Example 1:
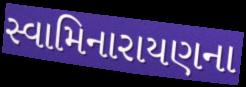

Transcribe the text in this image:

સ્વામિનારાયણના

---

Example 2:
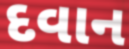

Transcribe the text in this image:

દવાન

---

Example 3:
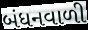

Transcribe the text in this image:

બંધનવાળી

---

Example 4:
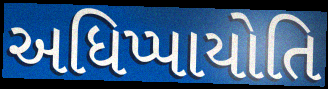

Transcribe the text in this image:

અધિપ્પાયોતિ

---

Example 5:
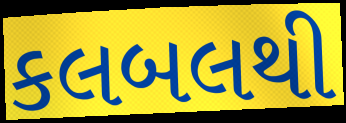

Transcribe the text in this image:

કલબલથી